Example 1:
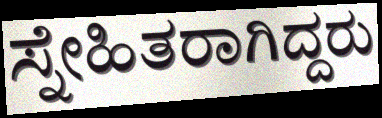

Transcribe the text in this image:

ಸ್ನೇಹಿತರಾಗಿದ್ದರು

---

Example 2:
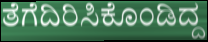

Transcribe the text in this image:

ತೆಗೆದಿರಿಸಿಕೊಂಡಿದ್ದ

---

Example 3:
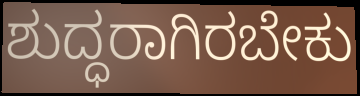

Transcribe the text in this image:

ಶುದ್ಧರಾಗಿರಬೇಕು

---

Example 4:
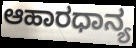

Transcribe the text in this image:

ಆಹಾರಧಾನ್ಯ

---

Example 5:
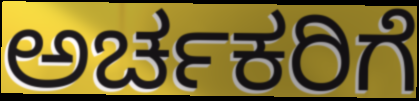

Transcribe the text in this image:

ಅರ್ಚಕರಿಗೆ